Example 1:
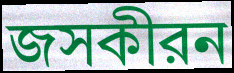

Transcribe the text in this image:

জসকীরন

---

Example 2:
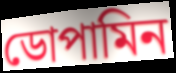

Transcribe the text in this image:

ডোপামিন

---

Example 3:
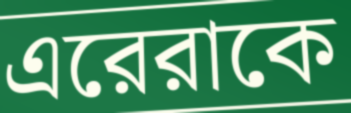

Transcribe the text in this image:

এরেরাকে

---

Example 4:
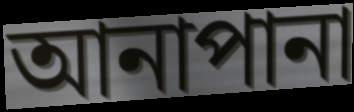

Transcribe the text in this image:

আনাপানা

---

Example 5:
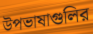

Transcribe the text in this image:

উপভাষাগুলির